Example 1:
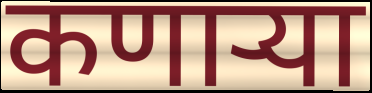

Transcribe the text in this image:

कणाऱ्या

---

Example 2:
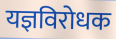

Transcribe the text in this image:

यज्ञविरोधक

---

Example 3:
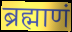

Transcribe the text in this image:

ब्रह्माणं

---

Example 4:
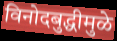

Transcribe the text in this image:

विनोदबुद्धीमुळे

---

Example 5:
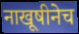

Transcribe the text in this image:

नाखूषीनेच